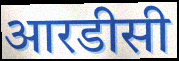
आरडीसी